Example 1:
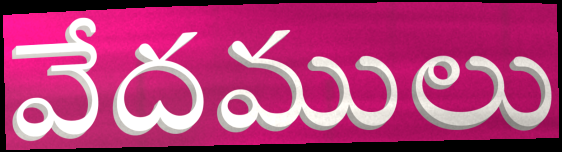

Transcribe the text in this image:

వేదములు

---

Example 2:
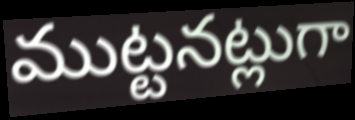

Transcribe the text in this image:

ముట్టనట్లుగా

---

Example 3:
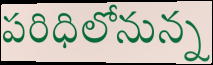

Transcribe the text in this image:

పరిధిలోనున్న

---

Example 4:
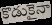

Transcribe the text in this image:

కొడుకైనా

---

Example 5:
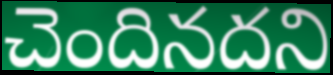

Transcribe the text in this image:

చెందినదని